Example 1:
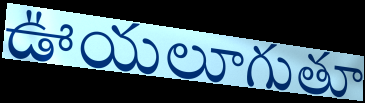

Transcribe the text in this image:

ఊయలూగుతూ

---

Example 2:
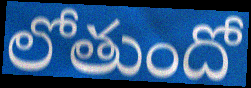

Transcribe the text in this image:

లోతుందో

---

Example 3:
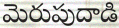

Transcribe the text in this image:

మెరుపుదాడి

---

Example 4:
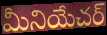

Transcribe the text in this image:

మీనియేచర్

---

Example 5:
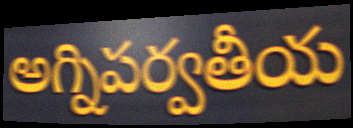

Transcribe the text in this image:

అగ్నిపర్వతీయ